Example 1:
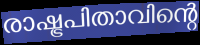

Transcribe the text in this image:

രാഷ്ട്രപിതാവിന്റെ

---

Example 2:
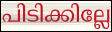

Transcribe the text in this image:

പിടിക്കില്ലേ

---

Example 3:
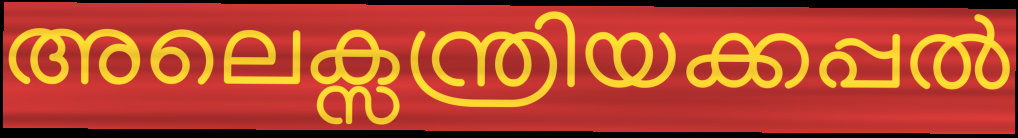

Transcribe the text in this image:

അലെക്സന്ത്രിയക്കപ്പൽ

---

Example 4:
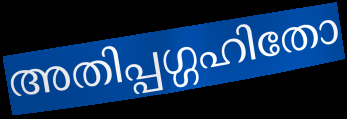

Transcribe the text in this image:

അതിപ്പഗ്ഗഹിതോ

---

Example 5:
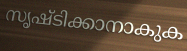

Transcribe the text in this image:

സൃഷ്ടിക്കാനാകുക